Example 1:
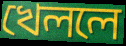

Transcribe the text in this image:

খেললে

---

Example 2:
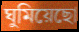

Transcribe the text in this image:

ঘুমিয়েছো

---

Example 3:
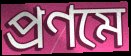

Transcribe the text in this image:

প্রণমে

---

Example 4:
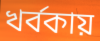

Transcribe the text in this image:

খর্বকায়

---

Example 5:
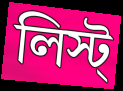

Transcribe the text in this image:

লিস্ট্